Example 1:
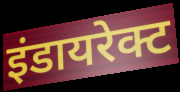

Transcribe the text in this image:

इंडायरेक्ट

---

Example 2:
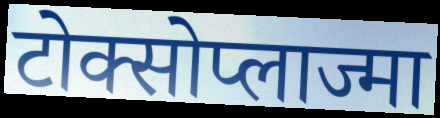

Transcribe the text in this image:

टोक्सोप्लाज्मा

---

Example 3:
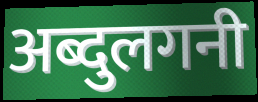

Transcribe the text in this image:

अब्दुलगनी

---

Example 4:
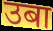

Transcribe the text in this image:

उबा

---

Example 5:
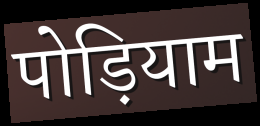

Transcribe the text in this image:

पोड़ियाम